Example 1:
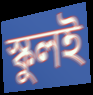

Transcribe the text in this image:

স্কুলই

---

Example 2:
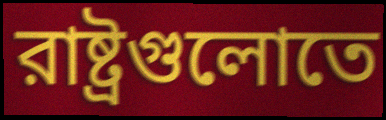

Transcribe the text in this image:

রাষ্ট্রগুলোতে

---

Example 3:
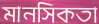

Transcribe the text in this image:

মানসিকতা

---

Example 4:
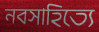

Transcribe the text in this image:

নবসাহিত্যে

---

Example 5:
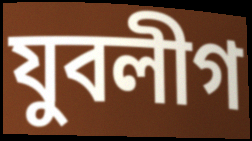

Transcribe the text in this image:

যুবলীগ